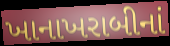
ખાનાખરાબીનાં